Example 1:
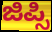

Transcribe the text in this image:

ಜಿಪ್ಸಿ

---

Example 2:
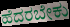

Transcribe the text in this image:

ಹೆದರಬೇಕು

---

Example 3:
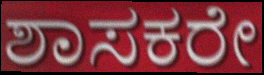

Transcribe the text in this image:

ಶಾಸಕರೇ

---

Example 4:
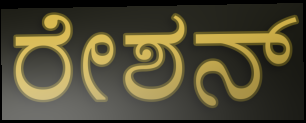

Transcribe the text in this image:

ರೇಶನ್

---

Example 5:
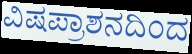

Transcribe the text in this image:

ವಿಷಪ್ರಾಶನದಿಂದ